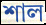
শাল